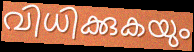
വിധിക്കുകയും